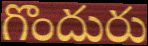
గొందురు